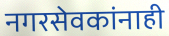
नगरसेवकांनाही